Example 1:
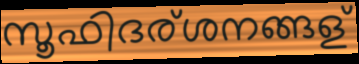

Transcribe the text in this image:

സൂഫിദര്ശനങ്ങള്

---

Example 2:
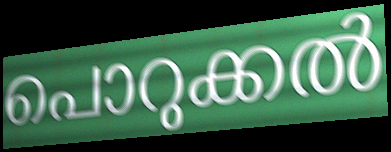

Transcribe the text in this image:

പൊറുക്കൽ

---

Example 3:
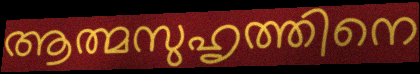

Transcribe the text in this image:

ആത്മസുഹൃത്തിനെ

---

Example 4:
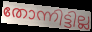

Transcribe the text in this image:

തോന്നിട്ടില്ല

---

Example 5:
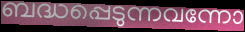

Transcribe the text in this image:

ബദ്ധപ്പെടുന്നവന്നോ